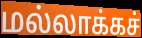
மல்லாக்கச்